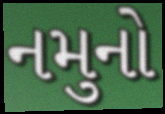
નમુનો